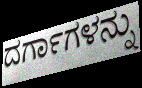
ದರ್ಗಾಗಳನ್ನು